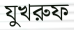
যুখরুফ